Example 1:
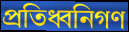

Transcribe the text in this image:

প্রতিধ্বনিগণ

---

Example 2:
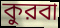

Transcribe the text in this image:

কুরবা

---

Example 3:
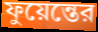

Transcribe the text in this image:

ফুয়েন্তের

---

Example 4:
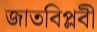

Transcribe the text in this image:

জাতবিপ্লবী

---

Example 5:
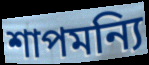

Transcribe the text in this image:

শাপমন্যি